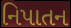
નિપાતન